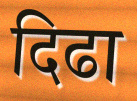
दिढा